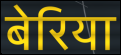
बेरिया